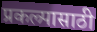
प्रकल्पासाठी